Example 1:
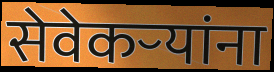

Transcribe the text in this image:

सेवेकऱ्यांना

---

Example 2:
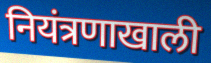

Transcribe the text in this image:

नियंत्रणाखाली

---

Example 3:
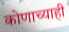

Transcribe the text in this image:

कोणाच्याही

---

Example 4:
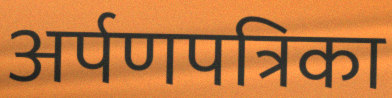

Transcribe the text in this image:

अर्पणपत्रिका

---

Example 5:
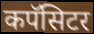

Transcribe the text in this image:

कपॅसिटर